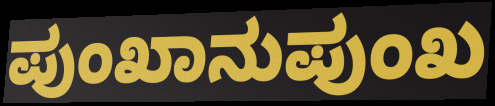
ಪುಂಖಾನುಪುಂಖ